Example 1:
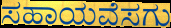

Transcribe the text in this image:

ಸಹಾಯವೆಸಗು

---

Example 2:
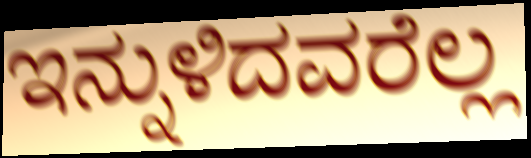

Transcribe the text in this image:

ಇನ್ನುಳಿದವರೆಲ್ಲ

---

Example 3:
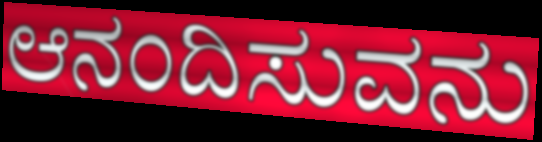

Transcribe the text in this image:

ಆನಂದಿಸುವನು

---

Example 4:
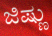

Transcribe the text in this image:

ಜಿಷ್ಣು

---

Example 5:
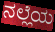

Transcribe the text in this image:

ನಲ್ಲೆಯ